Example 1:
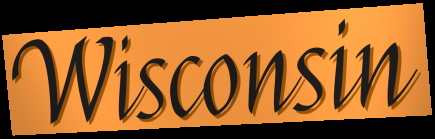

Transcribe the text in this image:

Wisconsin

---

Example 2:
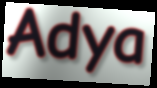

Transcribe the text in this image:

Adya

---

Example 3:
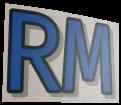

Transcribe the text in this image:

RM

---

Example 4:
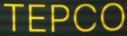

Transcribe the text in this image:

TEPCO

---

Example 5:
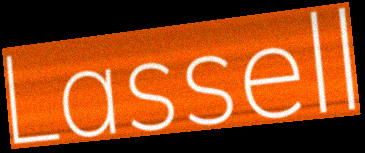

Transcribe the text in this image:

Lassell